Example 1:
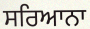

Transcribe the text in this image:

ਸਰਿਆਨਾ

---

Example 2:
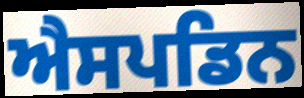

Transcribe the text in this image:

ਐਸਪਡਿਨ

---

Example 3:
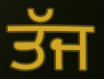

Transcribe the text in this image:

ਤੱਜ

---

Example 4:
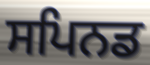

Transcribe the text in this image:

ਸਪਿਨਡ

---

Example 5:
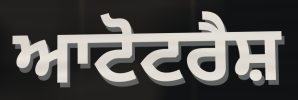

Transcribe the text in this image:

ਆਟੋਟਰੈਸ਼